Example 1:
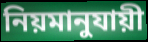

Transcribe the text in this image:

নিয়মানুযায়ী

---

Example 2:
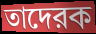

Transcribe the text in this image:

তাদেরক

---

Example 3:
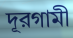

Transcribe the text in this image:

দূরগামী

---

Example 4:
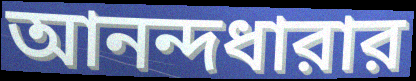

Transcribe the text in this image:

আনন্দধারার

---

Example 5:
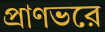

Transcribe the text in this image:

প্রাণভরে